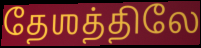
தேஶத்திலே